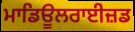
ਮਾਡਿਊਲਰਾਈਜ਼ਡ